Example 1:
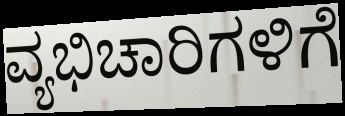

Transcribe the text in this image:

ವ್ಯಭಿಚಾರಿಗಳಿಗೆ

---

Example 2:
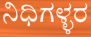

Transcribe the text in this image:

ನಿಧಿಗಳ್ಳರ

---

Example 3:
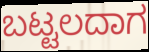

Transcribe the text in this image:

ಬಟ್ಟಲದಾಗ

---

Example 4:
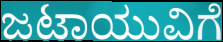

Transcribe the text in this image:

ಜಟಾಯುವಿಗೆ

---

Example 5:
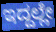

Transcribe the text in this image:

ಇದ್ದಲ್ಲೇ